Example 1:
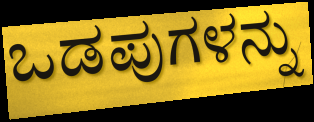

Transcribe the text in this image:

ಒಡಪುಗಳನ್ನು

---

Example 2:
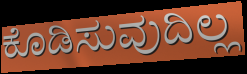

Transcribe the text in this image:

ಕೊಡಿಸುವುದಿಲ್ಲ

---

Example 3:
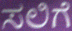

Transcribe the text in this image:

ಸಲಿಗೆ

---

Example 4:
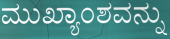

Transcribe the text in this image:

ಮುಖ್ಯಾಂಶವನ್ನು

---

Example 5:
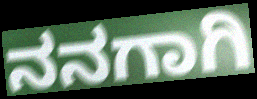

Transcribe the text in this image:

ನನಗಾಗಿ